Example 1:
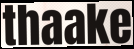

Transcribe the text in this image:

thaake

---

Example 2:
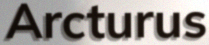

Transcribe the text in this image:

Arcturus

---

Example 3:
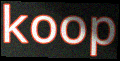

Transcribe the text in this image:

koop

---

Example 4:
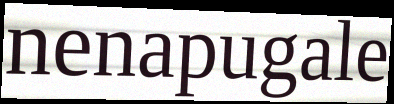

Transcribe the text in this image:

nenapugale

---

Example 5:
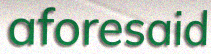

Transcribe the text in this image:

aforesaid